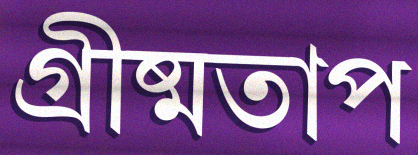
গ্রীষ্মতাপ